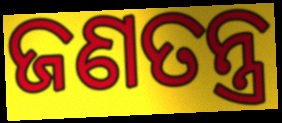
ଜଣତନ୍ତ୍ର